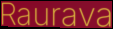
Raurava